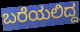
ಬರೆಯಲಿದ್ದ